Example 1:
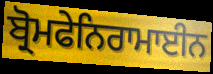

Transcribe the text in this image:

ਬ੍ਰੋਮਫੇਨਿਰਾਮਾਈਨ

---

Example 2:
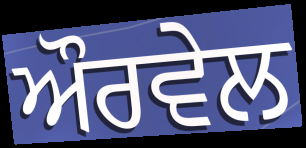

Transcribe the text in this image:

ਔਰਵੇਲ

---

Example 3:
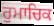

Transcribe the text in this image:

ਰੁਮਾਚਿਕ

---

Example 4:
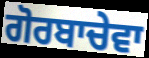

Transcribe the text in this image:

ਗੋਰਬਾਚੇਵਾ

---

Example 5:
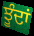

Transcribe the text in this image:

ਝੂੰਦਾਂ